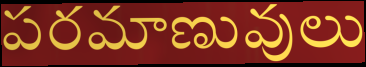
పరమాణువులు